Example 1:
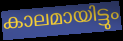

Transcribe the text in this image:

കാലമായിട്ടും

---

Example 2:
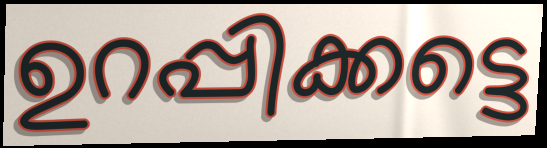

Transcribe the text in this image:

ഉറപ്പിക്കട്ടെ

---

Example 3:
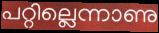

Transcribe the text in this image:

പറ്റില്ലെന്നാണു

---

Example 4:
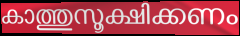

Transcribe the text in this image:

കാത്തുസൂക്ഷിക്കണം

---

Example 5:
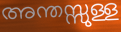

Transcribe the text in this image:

അന്തസ്സുള്ള